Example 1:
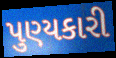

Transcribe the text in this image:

પુણ્યકારી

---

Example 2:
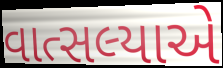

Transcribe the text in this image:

વાત્સલ્યાએ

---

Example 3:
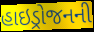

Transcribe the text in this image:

હાઇડ્રોજનની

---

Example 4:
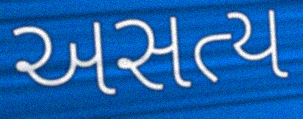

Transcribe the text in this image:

અસત્ય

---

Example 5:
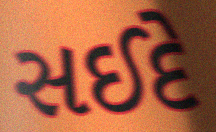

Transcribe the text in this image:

સઈદે